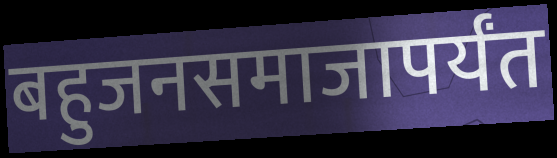
बहुजनसमाजापर्यंत